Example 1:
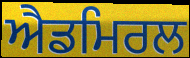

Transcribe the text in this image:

ਐਡਮਿਰਲ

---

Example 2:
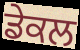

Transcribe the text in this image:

ਡੇਕਲ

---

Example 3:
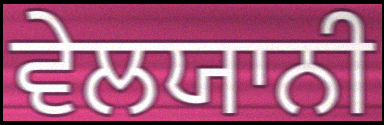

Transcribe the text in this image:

ਵੇਲਯਾਨੀ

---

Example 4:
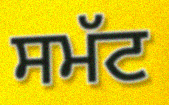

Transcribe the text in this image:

ਸਮੱਟ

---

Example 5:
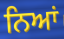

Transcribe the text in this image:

ਨਿਆਂ